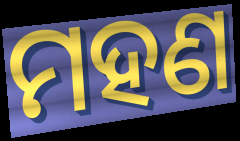
ମହଣ